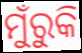
ମୁଁରୁକି